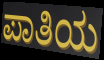
ಪಾತಿಯ